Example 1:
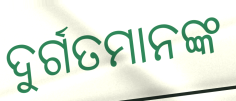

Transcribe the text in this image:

ଦୁର୍ଗତମାନଙ୍କ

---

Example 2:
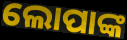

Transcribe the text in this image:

ଲୋପାଙ୍କ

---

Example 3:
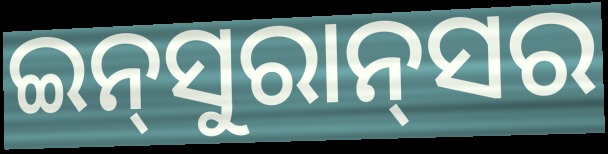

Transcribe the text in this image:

ଇନ୍‍ସୁରାନ୍‍ସର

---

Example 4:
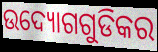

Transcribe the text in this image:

ଉଦ୍ୟୋଗଗୁଡିକର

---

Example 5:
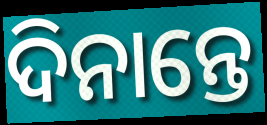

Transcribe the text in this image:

ଦିନାନ୍ତେ